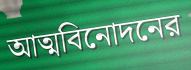
আত্মবিনোদনের